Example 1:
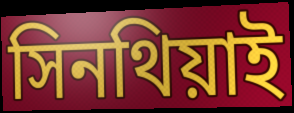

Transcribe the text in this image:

সিনথিয়াই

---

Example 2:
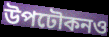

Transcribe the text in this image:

উপঢৌকনও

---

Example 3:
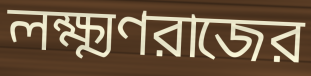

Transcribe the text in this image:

লক্ষ্মণরাজের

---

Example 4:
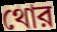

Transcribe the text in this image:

থোর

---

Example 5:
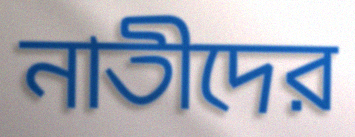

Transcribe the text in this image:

নাতীদের